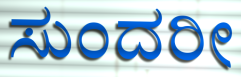
ಸುಂದರೀ